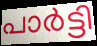
പാർട്ടി